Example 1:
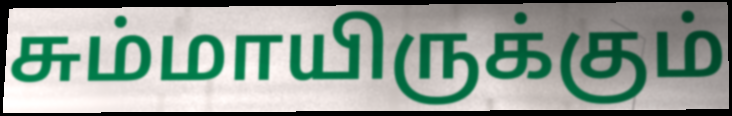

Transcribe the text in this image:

சும்மாயிருக்கும்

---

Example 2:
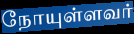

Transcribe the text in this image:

நோயுள்ளவர்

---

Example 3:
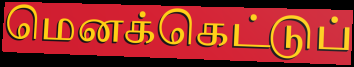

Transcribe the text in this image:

மெனக்கெட்டுப்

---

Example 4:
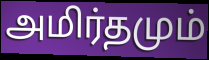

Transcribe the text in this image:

அமிர்தமும்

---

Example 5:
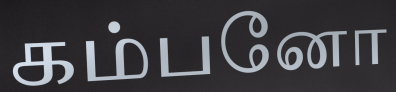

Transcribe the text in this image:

கம்பனோ